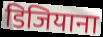
डिजियाना